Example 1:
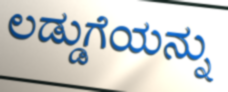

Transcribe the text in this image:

ಲಡ್ಡುಗೆಯನ್ನು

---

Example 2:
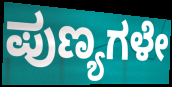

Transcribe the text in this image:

ಪುಣ್ಯಗಳೇ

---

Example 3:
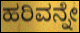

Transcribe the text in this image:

ಹರಿವನ್ನೇ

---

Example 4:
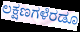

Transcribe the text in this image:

ಲಕ್ಷಣಗಳೆರಡೂ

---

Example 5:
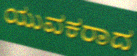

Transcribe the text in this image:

ಯುವಕರಾದ